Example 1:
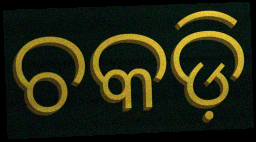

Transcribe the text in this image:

ଚକଡ଼ି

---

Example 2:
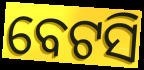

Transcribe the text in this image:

ବେଟସି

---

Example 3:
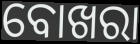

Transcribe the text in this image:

ବୋଖରା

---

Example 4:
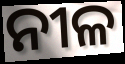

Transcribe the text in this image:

ନୀଳ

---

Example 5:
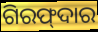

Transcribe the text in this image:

ଗିରଫ୍‍ଦାର